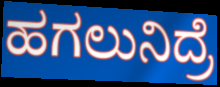
ಹಗಲುನಿದ್ರೆ